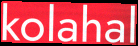
kolahal